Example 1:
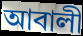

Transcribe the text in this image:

আবালী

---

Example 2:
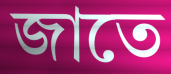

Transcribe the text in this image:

জাতে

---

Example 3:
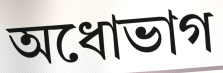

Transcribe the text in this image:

অধোভাগ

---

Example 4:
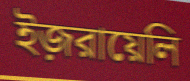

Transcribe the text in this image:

ইজ়রায়েলি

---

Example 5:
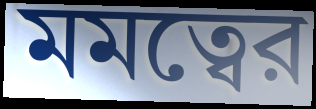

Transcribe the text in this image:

মমত্বের